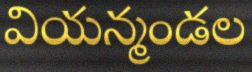
వియన్మండల